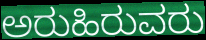
ಅರುಹಿರುವರು